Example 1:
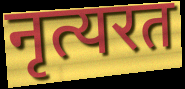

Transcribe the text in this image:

नृत्यरत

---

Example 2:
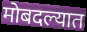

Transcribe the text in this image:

मोबदल्यात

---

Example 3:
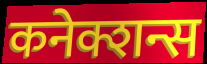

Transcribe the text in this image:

कनेक्शन्स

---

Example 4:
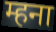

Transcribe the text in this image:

म्हना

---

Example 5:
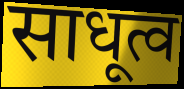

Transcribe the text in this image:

साधूत्व